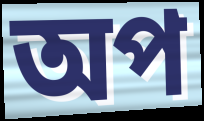
অপ